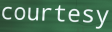
courtesy